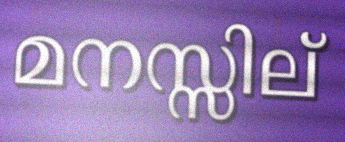
മനസ്സില്